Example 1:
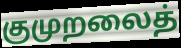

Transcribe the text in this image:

குமுறலைத்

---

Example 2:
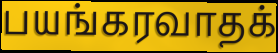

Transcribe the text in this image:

பயங்கரவாதக்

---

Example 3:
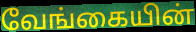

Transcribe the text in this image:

வேங்கையின்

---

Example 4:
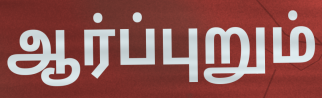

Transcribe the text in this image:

ஆர்ப்புறும்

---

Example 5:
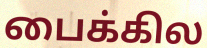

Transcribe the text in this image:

பைக்கில